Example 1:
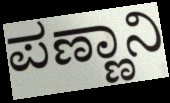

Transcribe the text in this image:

ಪಣ್ಣಾನಿ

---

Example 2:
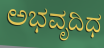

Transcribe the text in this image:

ಅಭವೃದಿಧ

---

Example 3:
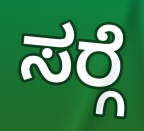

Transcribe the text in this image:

ಸರ್‍ಗೆ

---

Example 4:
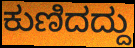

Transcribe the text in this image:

ಕುಣಿದದ್ದು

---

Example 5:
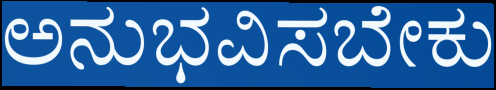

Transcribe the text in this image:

ಅನುಭವಿಸಬೇಕು